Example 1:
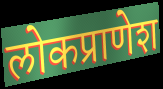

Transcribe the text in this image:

लोकप्राणेश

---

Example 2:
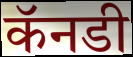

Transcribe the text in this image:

कॅनडी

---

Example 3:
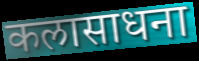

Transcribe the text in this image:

कलासाधना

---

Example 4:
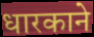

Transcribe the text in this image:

धारकाने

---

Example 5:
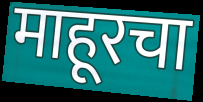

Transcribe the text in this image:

माहूरचा